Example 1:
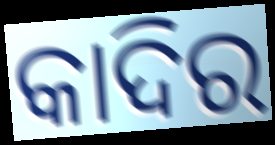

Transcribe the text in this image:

କାଦିର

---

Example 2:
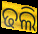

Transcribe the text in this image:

ଢଲି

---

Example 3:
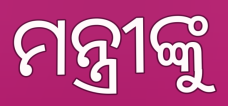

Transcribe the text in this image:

ମନ୍ତ୍ରୀଙ୍କୁ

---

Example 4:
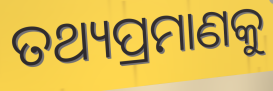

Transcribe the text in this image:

ତଥ୍ୟପ୍ରମାଣକୁ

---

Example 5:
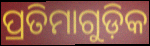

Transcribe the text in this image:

ପ୍ରତିମାଗୁଡ଼ିକ